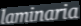
laminaria